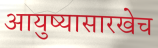
आयुष्यासारखेच